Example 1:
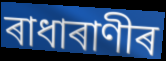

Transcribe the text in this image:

ৰাধাৰাণীৰ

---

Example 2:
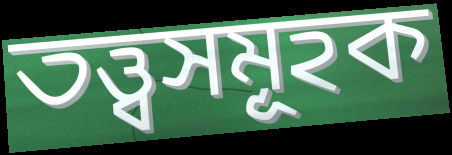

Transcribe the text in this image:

তত্ত্বসমূহক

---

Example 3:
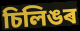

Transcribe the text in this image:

চিলিঙৰ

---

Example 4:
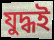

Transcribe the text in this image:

যুদ্ধই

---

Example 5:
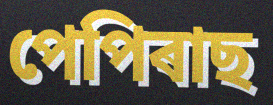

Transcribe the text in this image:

পেপিৰাছ